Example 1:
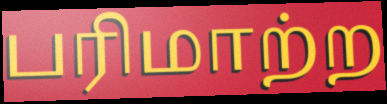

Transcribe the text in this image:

பரிமாற்ற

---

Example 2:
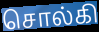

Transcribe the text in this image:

சொல்கி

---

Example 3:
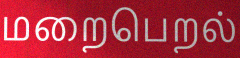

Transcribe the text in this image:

மறைபெறல்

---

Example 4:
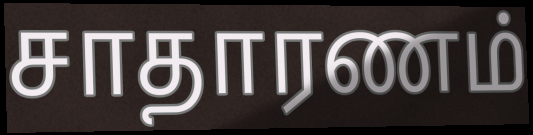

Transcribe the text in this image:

சாதாரணம்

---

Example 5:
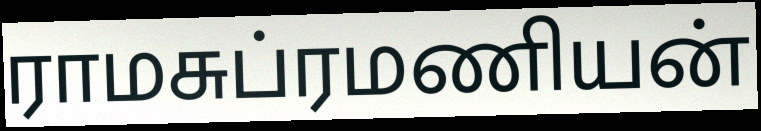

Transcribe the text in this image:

ராமசுப்ரமணியன்